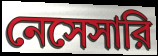
নেসেসারি